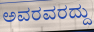
ಅವರವರದ್ದು